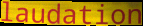
laudation